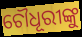
ଚୌଧୂରୀଙ୍କୁ